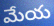
మేయ